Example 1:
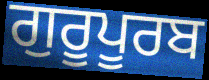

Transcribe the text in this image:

ਗੁਰੂਪੂਰਬ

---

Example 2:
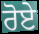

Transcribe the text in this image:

ਰੋਏ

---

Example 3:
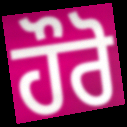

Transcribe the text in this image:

ਹੌਰੋ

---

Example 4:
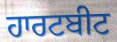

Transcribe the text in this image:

ਹਾਰਟਬੀਟ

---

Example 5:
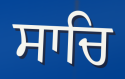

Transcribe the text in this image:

ਸਾਚਿ